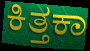
ಕಿತ್ತಕಾ